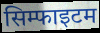
सिम्फाइटम